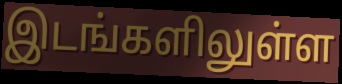
இடங்களிலுள்ள